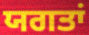
ਯਗਤਾਂ